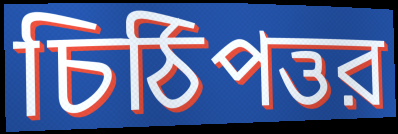
চিঠিপত্তর